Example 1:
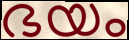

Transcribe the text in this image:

ഭയം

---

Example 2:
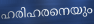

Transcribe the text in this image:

ഹരിഹരനെയും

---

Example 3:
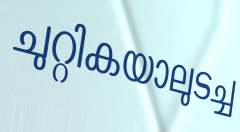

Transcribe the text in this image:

ചുറ്റികയാലുടച്ച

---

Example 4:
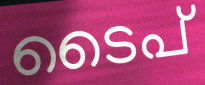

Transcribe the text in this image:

ടൈപ്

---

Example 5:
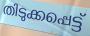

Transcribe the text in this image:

തിടുക്കപ്പെട്ട്